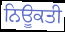
ਨਿਊਕਤੀ